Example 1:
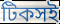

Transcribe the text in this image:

টিকসই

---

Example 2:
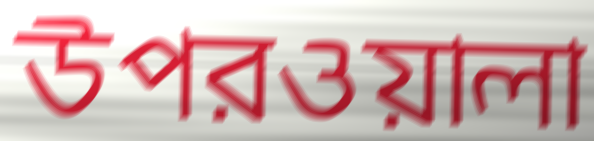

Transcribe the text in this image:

উপরওয়ালা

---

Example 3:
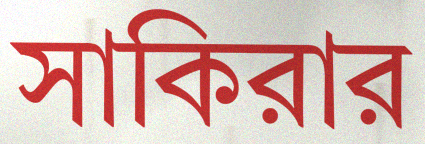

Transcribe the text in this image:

সাকিরার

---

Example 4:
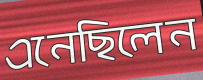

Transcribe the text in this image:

এনেছিলেন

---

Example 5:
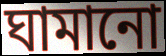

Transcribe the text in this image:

ঘামানো